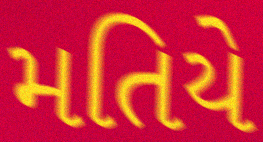
મતિયે